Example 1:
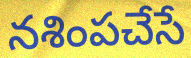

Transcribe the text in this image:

నశింపచేసే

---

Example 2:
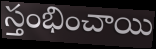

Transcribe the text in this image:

స్తంభించాయి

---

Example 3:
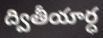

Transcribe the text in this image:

ద్వితీయార్ధ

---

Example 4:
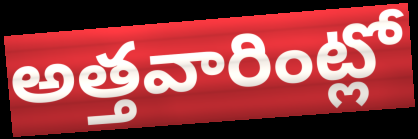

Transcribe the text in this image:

అత్తవారింట్లో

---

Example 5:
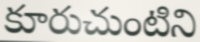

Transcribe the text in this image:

కూరుచుంటిని